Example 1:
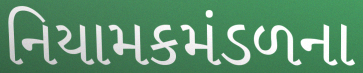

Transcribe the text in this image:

નિયામકમંડળના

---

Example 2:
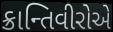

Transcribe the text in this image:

ક્રાન્તિવીરોએ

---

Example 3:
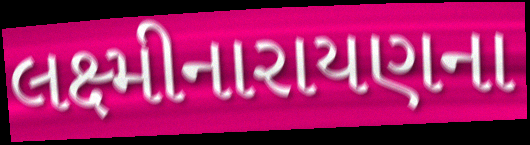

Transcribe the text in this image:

લક્ષ્મીનારાયણના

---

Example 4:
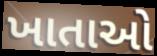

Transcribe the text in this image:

ખાતાઓ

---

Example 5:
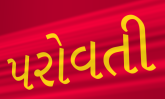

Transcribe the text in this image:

પરોવતી